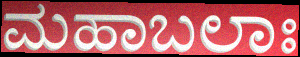
ಮಹಾಬಲಾಃ